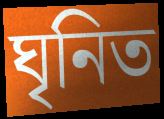
ঘৃনিত